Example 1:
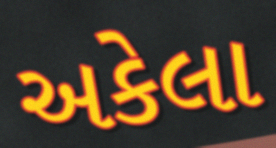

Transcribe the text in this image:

અકેલા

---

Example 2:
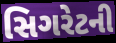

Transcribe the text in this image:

સિગરેટની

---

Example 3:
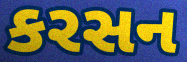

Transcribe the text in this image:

કરસન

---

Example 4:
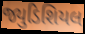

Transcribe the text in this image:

જ્યુડિશિયલ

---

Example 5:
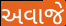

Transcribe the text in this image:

અવાજે